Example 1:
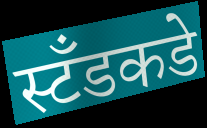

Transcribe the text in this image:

स्टॅंडकडे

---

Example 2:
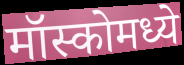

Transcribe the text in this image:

मॉस्कोमध्ये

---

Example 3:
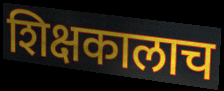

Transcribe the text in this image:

शिक्षकालाच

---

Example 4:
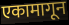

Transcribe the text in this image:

एकामागून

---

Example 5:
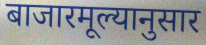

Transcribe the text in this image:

बाजारमूल्यानुसार